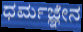
ಧರ್ಮಜ್ಞೇನ